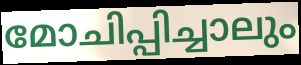
മോചിപ്പിച്ചാലും